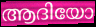
ആദിയോ